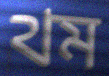
থম